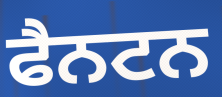
ਫੈਨਟਨ